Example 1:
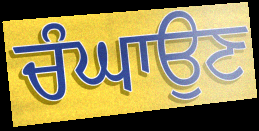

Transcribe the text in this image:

ਚੰਘਾਉਣ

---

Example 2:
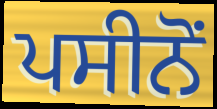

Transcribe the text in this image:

ਪਸੀਨੋਂ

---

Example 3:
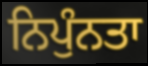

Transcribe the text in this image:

ਨਿਪੁੰਨਤਾ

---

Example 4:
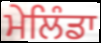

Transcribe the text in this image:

ਮੇਲਿੰਡਾ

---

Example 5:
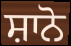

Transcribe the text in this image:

ਸ਼ਾਨੋ